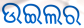
ଉଇଲର